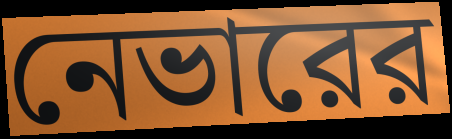
নেভারের